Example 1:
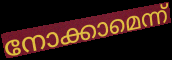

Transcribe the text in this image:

നോക്കാമെന്ന്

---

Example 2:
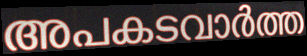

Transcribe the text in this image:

അപകടവാർത്ത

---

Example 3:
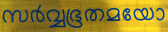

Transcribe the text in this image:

സർവ്വഭൂതമയോ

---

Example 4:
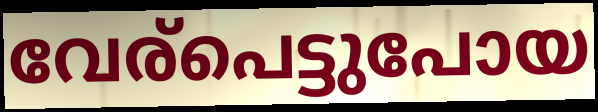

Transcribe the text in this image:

വേര്പെട്ടുപോയ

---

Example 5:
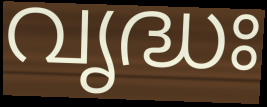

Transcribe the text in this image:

വൃദ്ധഃ